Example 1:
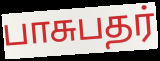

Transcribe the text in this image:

பாசுபதர்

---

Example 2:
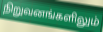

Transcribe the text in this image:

நிறுவனங்களிலும்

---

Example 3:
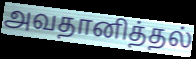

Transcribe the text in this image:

அவதானித்தல்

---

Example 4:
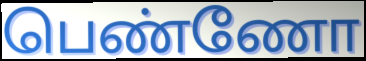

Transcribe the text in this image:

பெண்ணோ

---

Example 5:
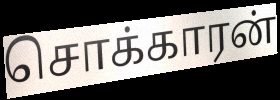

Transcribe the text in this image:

சொக்காரன்